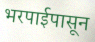
भरपाईपासून